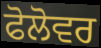
ਫੋਲੋਵਰ